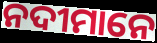
ନଦୀମାନେ